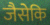
जैसेकि